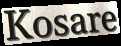
Kosare